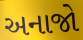
અનાજો